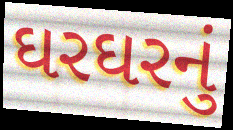
ઘરઘરનું